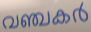
വഞ്ചകർ